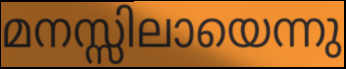
മനസ്സിലായെന്നു